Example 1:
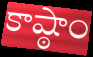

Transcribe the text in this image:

కాష్ఠాం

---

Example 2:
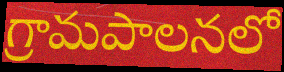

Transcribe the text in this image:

గ్రామపాలనలో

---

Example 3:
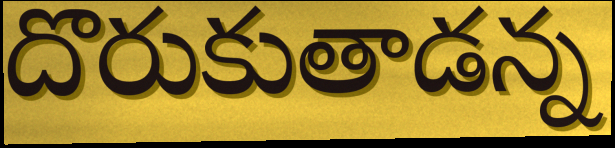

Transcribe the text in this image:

దొరుకుతాడన్న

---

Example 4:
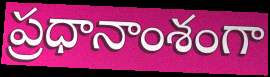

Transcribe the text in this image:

ప్రధానాంశంగా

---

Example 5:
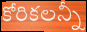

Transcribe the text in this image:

కోరికలన్నీ